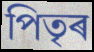
পিতৃৰ